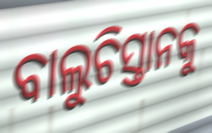
ବାଲୁଚିସ୍ତାନକୁ